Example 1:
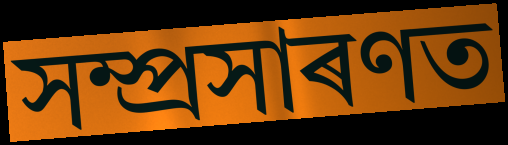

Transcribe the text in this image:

সম্প্ৰসাৰণত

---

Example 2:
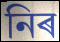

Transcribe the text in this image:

নিৰ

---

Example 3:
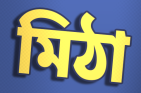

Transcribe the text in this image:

মিঠা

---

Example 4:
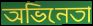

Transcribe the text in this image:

অভিনেতা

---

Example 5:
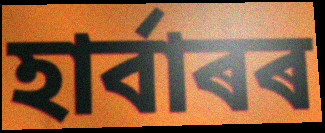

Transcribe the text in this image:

হাৰ্বাৰৰ